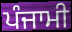
ਪੰਜਾਮੀ